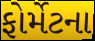
ફોર્મેટના